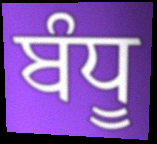
ਬੰਧੂ